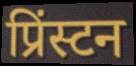
प्रिंस्टन